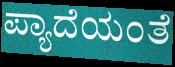
ಪ್ಯಾದೆಯಂತೆ